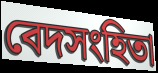
বেদসংহিতা